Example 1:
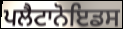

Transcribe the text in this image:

ਪਲੈਟਾਨੋਇਡਸ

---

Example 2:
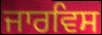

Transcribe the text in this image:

ਜਾਰਵਿਸ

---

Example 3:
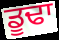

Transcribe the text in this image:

ਡੂਢਾ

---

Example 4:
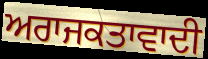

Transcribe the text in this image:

ਅਰਾਜਕਤਾਵਾਦੀ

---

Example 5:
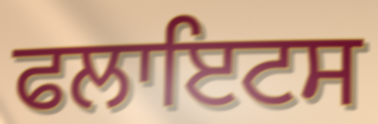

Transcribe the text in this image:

ਫਲਾਇਟਸ